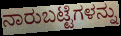
ನಾರುಬಟ್ಟೆಗಳನ್ನು